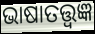
ଭାଷାତତ୍ତ୍ୱଜ୍ଞ